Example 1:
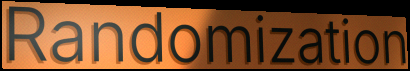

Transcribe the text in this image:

Randomization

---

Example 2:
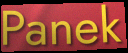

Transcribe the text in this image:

Panek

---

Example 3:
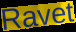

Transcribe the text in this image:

Ravet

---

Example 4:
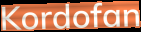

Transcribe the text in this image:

Kordofan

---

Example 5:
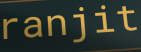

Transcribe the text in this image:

ranjit